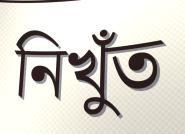
নিখুঁত